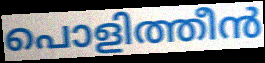
പൊളിത്തീൻ